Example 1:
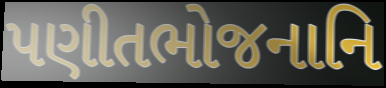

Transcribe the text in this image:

પણીતભોજનાનિ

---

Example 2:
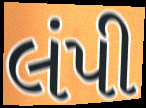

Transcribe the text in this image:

લંપી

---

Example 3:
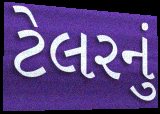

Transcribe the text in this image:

ટેલરનું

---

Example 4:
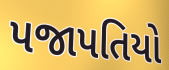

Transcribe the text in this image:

પજાપતિયો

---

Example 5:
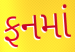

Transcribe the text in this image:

ફનમાં